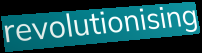
revolutionising